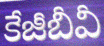
కేజీబీవీ